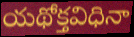
యథోక్తవిధినా